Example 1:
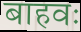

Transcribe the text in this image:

बाहवः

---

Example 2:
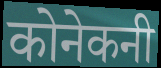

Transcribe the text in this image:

कोनेकनी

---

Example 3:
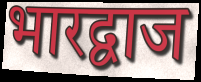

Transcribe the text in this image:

भारद्वाज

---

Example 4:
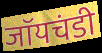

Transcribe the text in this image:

जॉयचंडी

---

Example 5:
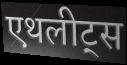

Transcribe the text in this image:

एथलीट्स